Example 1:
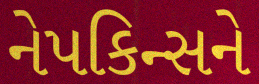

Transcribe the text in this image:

નેપકિન્સને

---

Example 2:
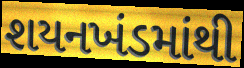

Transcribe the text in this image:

શયનખંડમાંથી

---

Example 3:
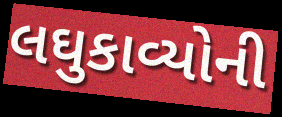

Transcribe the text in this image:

લઘુકાવ્યોની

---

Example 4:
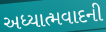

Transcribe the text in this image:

અધ્યાત્મવાદની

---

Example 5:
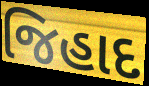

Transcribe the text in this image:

જિહાદ